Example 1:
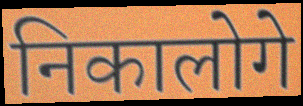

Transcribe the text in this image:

निकालोगे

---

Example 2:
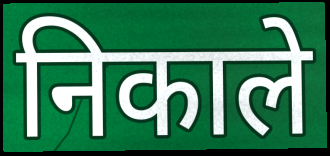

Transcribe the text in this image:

निकाले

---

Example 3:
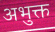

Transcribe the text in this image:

अभुक्त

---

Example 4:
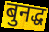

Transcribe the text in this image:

बुनद्ध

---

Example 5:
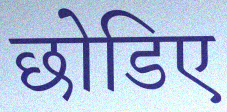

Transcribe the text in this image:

छोडिए